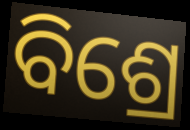
ବିଶ୍ରେ